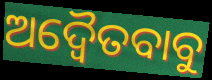
ଅଦ୍ୱୈତବାବୁ